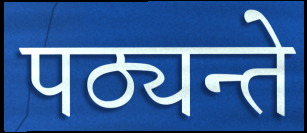
पठ्यन्ते